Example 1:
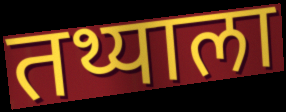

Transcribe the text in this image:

तथ्याला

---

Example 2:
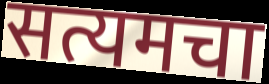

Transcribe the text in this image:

सत्यमचा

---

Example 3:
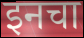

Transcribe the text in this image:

इनचा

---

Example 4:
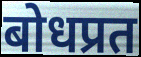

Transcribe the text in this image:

बोधप्रत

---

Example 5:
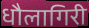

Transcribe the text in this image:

धौलागिरी